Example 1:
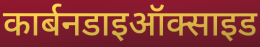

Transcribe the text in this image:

कार्बनडाइऑक्साइड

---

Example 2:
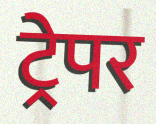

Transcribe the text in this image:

ट्रेपर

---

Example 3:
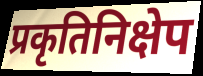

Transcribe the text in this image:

प्रकृतिनिक्षेप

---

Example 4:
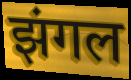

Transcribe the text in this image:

झंगल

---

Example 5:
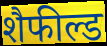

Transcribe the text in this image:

शैफील्ड